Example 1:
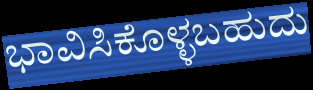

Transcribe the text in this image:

ಭಾವಿಸಿಕೊಳ್ಳಬಹುದು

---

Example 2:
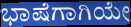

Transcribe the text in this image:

ಭಾಷೆಗಾಗಿಯೇ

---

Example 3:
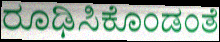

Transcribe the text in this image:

ರೂಢಿಸಿಕೊಂಡಂತೆ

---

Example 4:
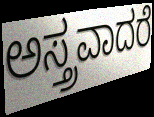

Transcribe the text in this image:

ಅಸ್ತ್ರವಾದರೆ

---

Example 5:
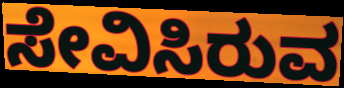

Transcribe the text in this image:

ಸೇವಿಸಿರುವ